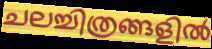
ചലച്ചിത്രങ്ങളിൽ